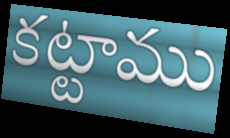
కట్టాము